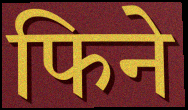
फिने